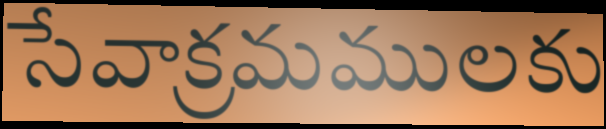
సేవాక్రమములకు